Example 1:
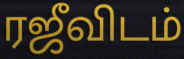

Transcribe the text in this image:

ரஜீவிடம்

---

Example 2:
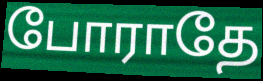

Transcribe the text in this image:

போராதே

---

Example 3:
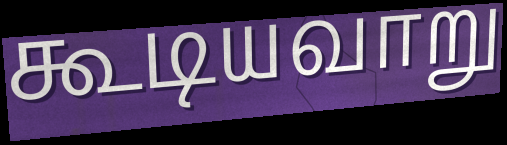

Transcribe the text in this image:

கூடியவாறு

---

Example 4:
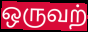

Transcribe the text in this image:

ஒருவற்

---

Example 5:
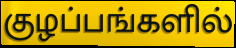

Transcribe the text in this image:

குழப்பங்களில்